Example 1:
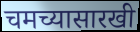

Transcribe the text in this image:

चमच्यासारखी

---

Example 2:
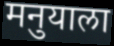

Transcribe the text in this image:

मनुयाला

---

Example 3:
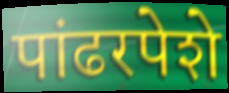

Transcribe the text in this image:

पांढरपेशे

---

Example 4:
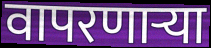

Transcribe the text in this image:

वापरणार्‍या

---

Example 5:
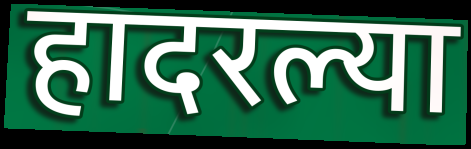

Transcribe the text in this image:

हादरल्या